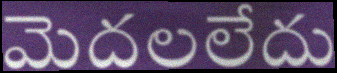
మెదలలేదు